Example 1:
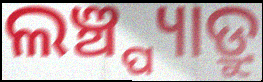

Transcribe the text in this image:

ଲଞ୍ଚ୍ପ୍ୟାଡ୍ରୁ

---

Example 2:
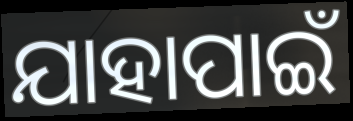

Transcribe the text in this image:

ଯାହାପାଇଁ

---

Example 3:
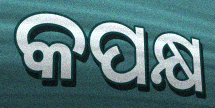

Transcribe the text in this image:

କପକ୍ଷ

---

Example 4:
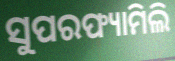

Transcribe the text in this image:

ସୁପରଫ୍ୟାମିଲି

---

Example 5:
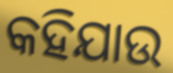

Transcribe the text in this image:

କହିଯାଉ